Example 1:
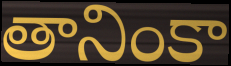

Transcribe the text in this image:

తానింకా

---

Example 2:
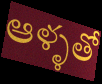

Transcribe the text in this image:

ఆళ్ళతో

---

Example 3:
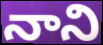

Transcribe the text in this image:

నాని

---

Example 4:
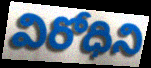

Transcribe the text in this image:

విరోధిని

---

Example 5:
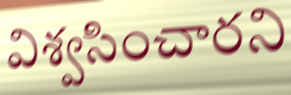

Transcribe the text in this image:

విశ్వసించారని